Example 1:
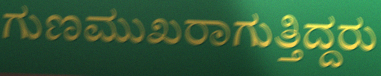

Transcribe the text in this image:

ಗುಣಮುಖರಾಗುತ್ತಿದ್ದರು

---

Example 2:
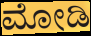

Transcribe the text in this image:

ಮೋಡಿ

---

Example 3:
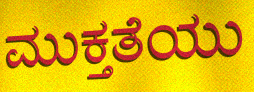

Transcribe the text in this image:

ಮುಕ್ತತೆಯು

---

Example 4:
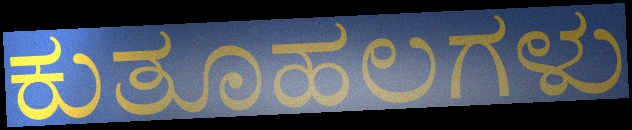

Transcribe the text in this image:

ಕುತೂಹಲಗಳು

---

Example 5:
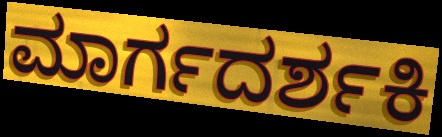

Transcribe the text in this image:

ಮಾರ್ಗದರ್ಶಕಿ